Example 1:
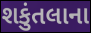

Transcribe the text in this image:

શકુંતલાના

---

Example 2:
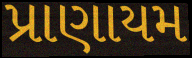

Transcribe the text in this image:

પ્રાણાયમ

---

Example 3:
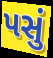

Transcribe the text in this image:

પસું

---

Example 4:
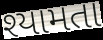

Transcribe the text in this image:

શ્યામતા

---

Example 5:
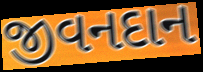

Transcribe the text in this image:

જીવનદાન